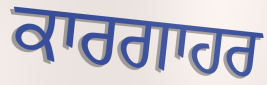
ਕਾਰਗਾਹਰ